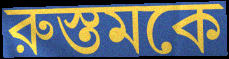
রুস্তমকে